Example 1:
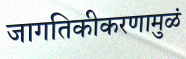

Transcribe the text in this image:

जागतिकीकरणामुळं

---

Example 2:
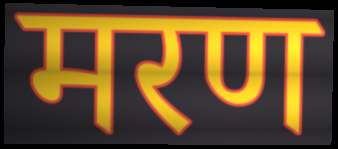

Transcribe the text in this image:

मरण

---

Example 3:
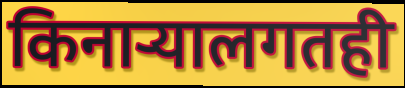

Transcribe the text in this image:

किनाऱ्यालगतही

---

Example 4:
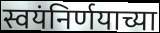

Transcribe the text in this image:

स्वयंनिर्णयाच्या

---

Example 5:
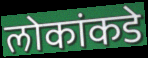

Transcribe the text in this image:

लोकांकडे